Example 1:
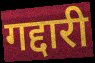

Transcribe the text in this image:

गद्दारी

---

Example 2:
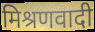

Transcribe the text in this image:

मिश्रणवादी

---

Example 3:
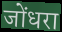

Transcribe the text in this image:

जोंधरा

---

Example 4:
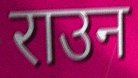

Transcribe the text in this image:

राउन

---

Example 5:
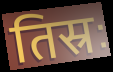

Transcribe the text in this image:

तिस्रः